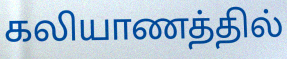
கலியாணத்தில்